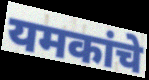
यमकांचे